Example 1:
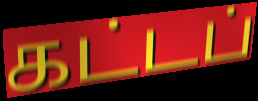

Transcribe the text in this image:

கட்டப்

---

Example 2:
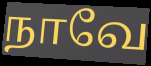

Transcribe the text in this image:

நாவே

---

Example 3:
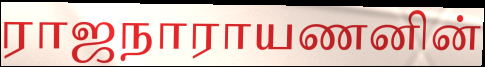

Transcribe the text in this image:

ராஜநாராயணனின்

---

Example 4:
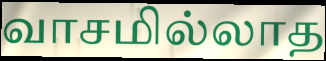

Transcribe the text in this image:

வாசமில்லாத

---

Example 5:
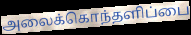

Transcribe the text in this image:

அலைக்கொந்தளிப்பை